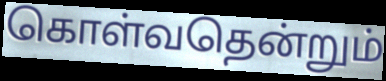
கொள்வதென்றும்